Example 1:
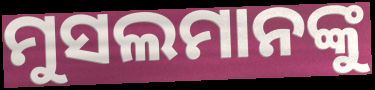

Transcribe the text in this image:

ମୁସଲମାନଙ୍କୁ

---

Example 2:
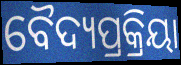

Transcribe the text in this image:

ବୈଦ୍ୟପ୍ରକ୍ରିୟା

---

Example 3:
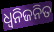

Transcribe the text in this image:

ଧ୍ଵନିଜନିତ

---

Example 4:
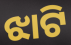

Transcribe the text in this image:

ଝାଟି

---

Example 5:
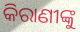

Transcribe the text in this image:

କିରାଣୀଙ୍କୁ